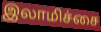
இலாமிச்சை